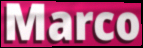
Marco